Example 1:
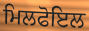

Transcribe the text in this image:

ਮਿਲਫੋਇਲ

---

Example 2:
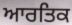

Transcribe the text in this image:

ਆਰਤਿਕ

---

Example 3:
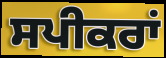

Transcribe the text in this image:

ਸਪੀਕਰਾਂ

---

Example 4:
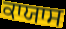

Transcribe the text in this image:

ਕਾਯਾਸ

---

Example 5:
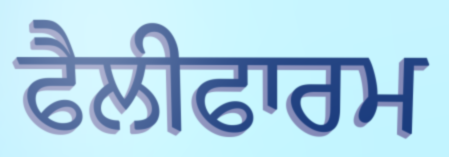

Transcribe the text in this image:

ਫੈਲੀਫਾਰਮ